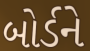
બોર્ડને